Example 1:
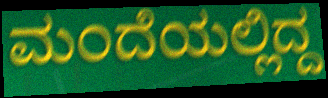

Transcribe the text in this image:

ಮಂದೆಯಲ್ಲಿದ್ದ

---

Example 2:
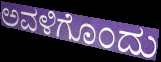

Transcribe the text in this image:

ಅವಳಿಗೊಂದು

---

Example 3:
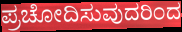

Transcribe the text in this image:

ಪ್ರಚೋದಿಸುವುದರಿಂದ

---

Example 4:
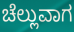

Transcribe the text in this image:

ಚೆಲ್ಲುವಾಗ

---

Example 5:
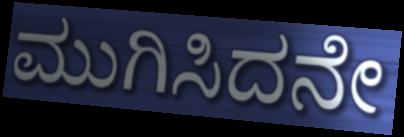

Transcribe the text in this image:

ಮುಗಿಸಿದನೇ